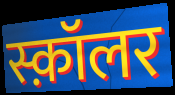
स्क़ॉलर